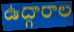
ఉద్గారాల